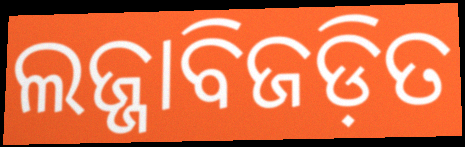
ଲଜ୍ଜାବିଜଡ଼ିତ